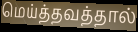
மெய்த்தவத்தால்